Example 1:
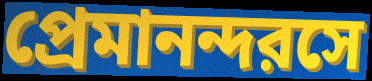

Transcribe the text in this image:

প্রেমানন্দরসে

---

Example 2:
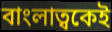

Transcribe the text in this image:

বাংলাত্বকেই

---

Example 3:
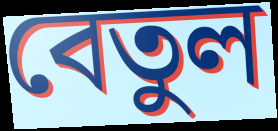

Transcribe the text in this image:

বেতুল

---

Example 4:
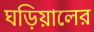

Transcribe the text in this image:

ঘড়িয়ালের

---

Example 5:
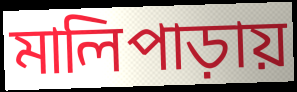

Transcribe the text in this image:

মালিপাড়ায়